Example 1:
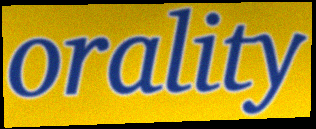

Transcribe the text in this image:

orality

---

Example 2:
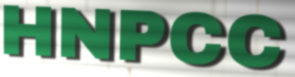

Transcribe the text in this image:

HNPCC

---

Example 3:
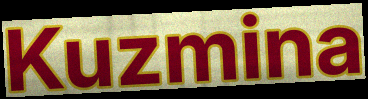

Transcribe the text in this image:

Kuzmina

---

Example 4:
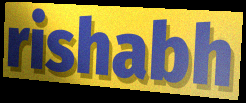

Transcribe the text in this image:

rishabh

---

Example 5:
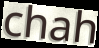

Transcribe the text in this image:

chah